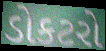
ડોકટરો